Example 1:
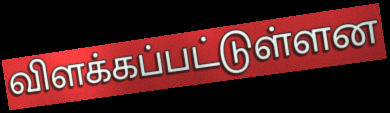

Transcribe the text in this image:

விளக்கப்பட்டுள்ளன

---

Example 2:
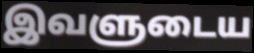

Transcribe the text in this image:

இவளுடைய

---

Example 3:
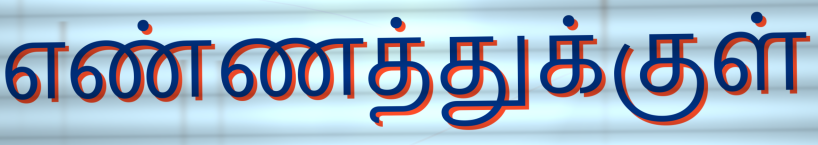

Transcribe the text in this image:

எண்ணத்துக்குள்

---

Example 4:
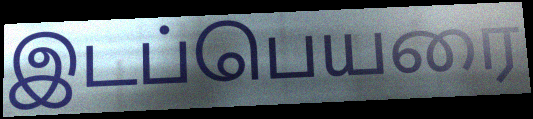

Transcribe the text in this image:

இடப்பெயரை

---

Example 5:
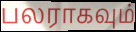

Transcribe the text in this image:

பலராகவும்